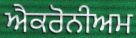
ਐਕਰੋਨੀਅਮ